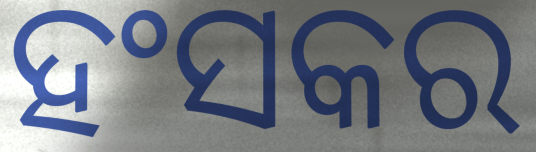
ହଂସକର